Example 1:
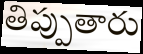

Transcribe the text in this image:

తిప్పుతారు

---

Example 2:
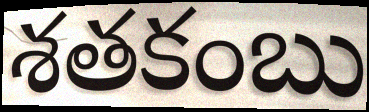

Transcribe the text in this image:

శతకంబు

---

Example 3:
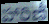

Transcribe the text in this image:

హారిణీ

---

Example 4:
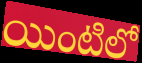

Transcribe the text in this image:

యింటిలో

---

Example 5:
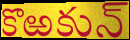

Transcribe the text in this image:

కొఱకున్